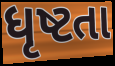
ધૃષ્ટતા